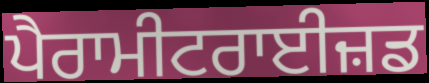
ਪੈਰਾਮੀਟਰਾਈਜ਼ਡ